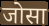
जोसा